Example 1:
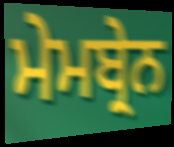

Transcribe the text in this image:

ਮੇਮਬ੍ਰੇਨ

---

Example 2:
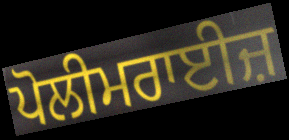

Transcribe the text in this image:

ਪੋਲੀਮਰਾਈਜ਼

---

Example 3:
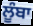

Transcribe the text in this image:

ਲੂੰਬਾ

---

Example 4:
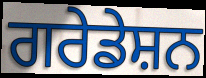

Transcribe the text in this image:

ਗਰੇਡੇਸ਼ਨ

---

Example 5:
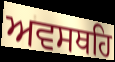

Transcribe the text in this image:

ਅਵਸਥਹਿ